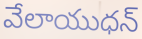
వేలాయుధన్